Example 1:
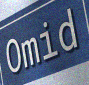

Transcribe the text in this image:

Omid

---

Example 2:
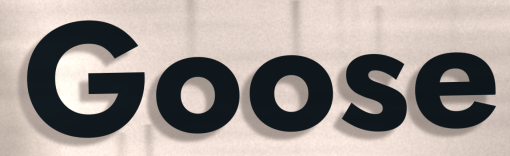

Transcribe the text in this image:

Goose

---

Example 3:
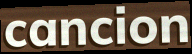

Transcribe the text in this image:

cancion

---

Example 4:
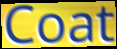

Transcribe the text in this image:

Coat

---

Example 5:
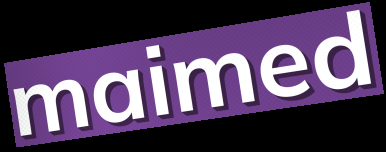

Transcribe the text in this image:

maimed